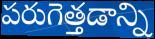
పరుగెత్తడాన్ని